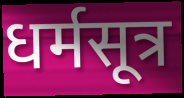
धर्मसूत्र